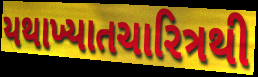
યથાખ્યાતચારિત્રથી